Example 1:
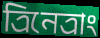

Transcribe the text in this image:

ত্রিনেত্রাং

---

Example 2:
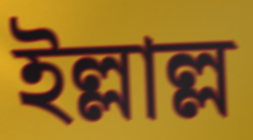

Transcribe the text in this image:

ইল্লাল্ল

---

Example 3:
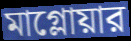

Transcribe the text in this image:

মাগ্লোয়ার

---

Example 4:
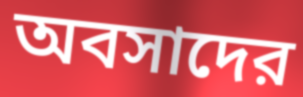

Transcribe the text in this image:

অবসাদের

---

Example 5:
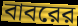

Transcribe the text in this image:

বাবরের